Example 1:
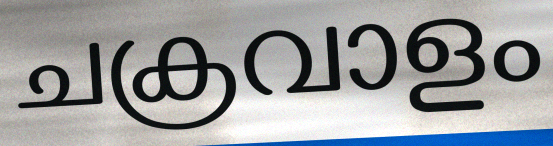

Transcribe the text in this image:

ചക്രവാളം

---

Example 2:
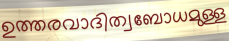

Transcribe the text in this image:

ഉത്തരവാദിത്വബോധമുള്ള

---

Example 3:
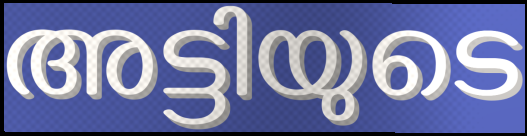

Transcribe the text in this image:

അട്ടിയുടെ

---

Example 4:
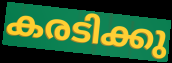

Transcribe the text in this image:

കരടിക്കു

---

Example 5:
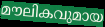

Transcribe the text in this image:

മൗലികവുമായ